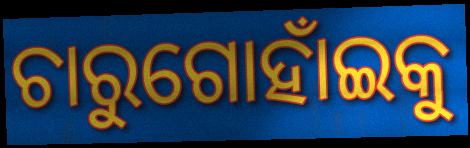
ଚାରୁଗୋହାଁଇକୁ